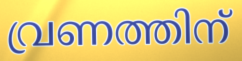
വ്രണത്തിന്